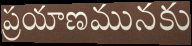
ప్రయాణమునకు